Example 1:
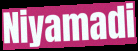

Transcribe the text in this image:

Niyamadi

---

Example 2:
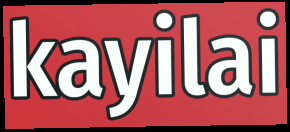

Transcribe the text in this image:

kayilai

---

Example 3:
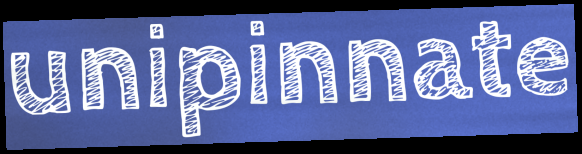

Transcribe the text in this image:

unipinnate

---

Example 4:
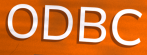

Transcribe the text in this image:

ODBC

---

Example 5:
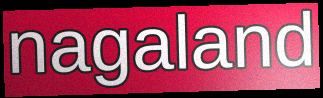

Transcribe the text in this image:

nagaland